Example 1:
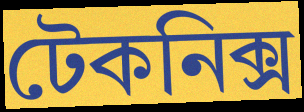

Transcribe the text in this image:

টেকনিক্স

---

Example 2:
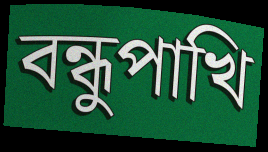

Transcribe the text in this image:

বন্ধুপাখি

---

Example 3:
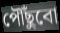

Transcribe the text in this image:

পৌঁছুবো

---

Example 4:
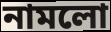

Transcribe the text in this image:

নামলো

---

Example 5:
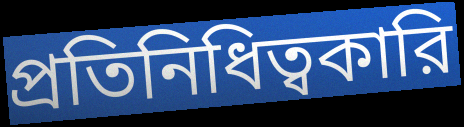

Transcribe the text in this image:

প্রতিনিধিত্বকারি